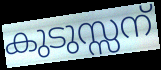
കുടുസ്സന്